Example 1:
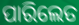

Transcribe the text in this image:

ପାରିଲେତ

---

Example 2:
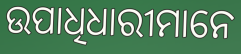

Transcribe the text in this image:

ଉପାଧିଧାରୀମାନେ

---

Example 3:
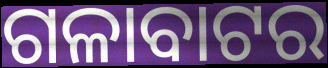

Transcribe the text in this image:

ଗଳାବାଟର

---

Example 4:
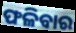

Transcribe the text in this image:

ଫଳିବାର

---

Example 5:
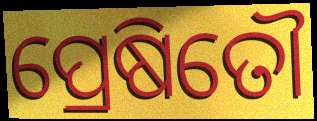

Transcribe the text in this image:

ପ୍ରେଷିତୌ